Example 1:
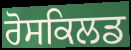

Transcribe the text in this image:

ਰੋਸਕਿਲਡ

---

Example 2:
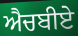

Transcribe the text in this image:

ਐਚਬੀਏ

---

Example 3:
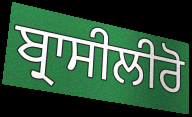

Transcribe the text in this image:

ਬ੍ਰਾਸੀਲੀਰੋ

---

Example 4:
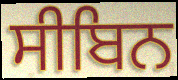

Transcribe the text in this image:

ਸੀਬਿਨ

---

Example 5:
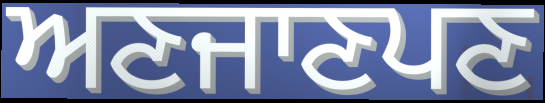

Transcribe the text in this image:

ਅਣਜਾਣਪਣ